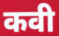
कवी